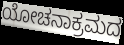
ಯೋಚನಾಕ್ರಮದ